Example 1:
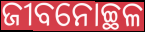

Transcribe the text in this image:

ଜୀବନୋଚ୍ଛଳ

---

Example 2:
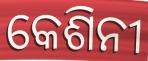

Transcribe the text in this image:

କେଶିନୀ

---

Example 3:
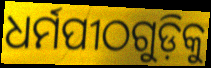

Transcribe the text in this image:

ଧର୍ମପୀଠଗୁଡ଼ିକୁ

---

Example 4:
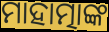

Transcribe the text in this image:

ମାହାତ୍ମାଙ୍କ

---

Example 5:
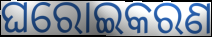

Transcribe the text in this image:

ଘରୋଇକରଣ